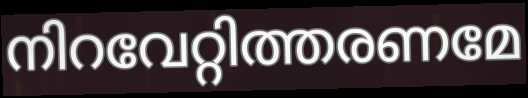
നിറവേറ്റിത്തരണമേ